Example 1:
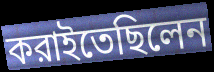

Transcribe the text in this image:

করাইতেছিলেন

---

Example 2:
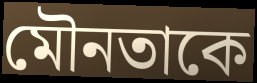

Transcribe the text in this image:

মৌনতাকে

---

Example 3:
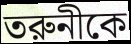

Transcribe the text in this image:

তরুনীকে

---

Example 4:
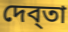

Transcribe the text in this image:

দেব্তা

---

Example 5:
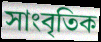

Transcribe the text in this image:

সাংবৃতিক